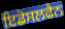
ਇਡੋਸਲਫੈਨ